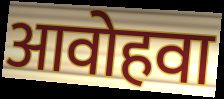
आवोहवा